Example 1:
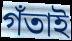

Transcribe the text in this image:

গঁতাই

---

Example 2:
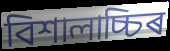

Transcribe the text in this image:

বিশালাচ্চিৰ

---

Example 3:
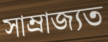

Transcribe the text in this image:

সাম্ৰাজ্যত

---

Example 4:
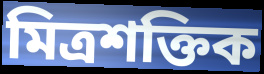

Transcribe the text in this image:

মিত্ৰশক্তিক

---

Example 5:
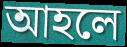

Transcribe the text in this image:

আহলে